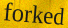
forked